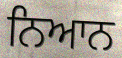
ਨਿਆਨ